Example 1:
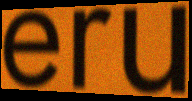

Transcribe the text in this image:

eru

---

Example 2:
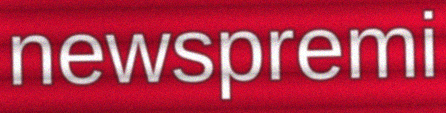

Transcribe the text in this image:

newspremi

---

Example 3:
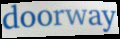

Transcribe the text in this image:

doorway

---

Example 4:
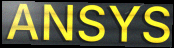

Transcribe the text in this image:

ANSYS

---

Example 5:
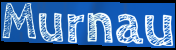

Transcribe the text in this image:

Murnau